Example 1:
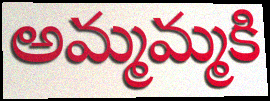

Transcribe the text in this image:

అమ్మమ్మకి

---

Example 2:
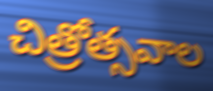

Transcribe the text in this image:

చిత్రోత్సవాల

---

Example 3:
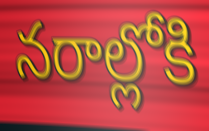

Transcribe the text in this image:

నరాల్లోకి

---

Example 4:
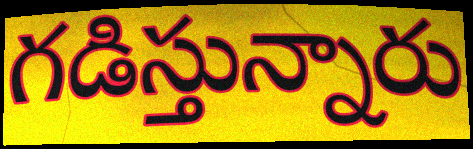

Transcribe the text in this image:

గడిస్తున్నారు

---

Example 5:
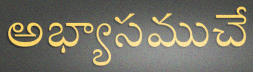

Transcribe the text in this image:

అభ్యాసముచే